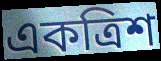
একত্রিশ